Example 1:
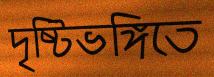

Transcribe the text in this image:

দৃষ্টিভঙ্গিতে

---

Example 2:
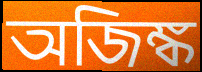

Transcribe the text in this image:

অজিঙ্ক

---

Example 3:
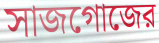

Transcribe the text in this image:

সাজগোজের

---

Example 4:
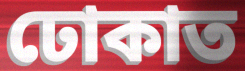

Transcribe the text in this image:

ঢোকাত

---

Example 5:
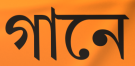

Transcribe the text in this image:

গানে